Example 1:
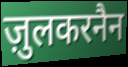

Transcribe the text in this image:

ज़ुलकरनैन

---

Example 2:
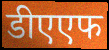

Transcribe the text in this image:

डीएएफ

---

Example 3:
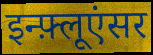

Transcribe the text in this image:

इन्फ़्लूएंसर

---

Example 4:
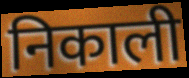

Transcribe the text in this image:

निकाली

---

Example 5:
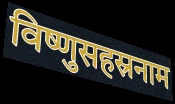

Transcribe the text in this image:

विष्णुसहस्रनाम